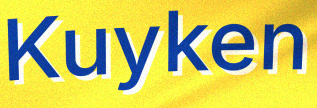
Kuyken